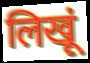
लिखूं